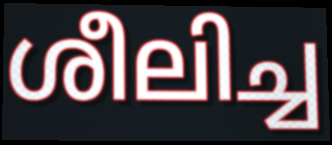
ശീലിച്ച